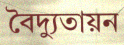
বৈদ্যুতায়ন